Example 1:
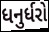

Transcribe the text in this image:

ધનુર્ધરો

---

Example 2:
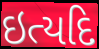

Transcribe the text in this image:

ઇત્યદિ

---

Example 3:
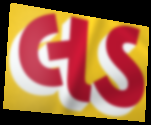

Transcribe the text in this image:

લડ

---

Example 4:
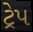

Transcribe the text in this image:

ટ્રેપ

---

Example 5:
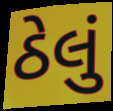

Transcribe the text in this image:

ઠેલું